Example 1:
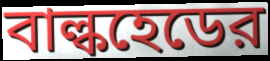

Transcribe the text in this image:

বাল্কহেডের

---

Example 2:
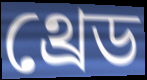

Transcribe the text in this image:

থ্রেড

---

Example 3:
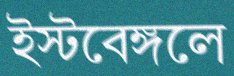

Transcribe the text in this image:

ইস্টবেঙ্গলে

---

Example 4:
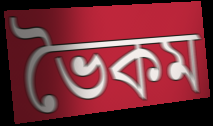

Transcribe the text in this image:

ভৈকম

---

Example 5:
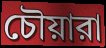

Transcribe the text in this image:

চৌয়ারা